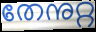
തേനുറ്റ